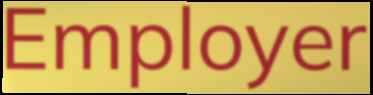
Employer